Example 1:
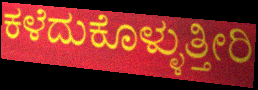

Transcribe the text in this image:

ಕಳೆದುಕೊಳ್ಳುತ್ತೀರಿ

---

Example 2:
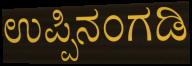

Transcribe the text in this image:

ಉಪ್ಪಿನಂಗಡಿ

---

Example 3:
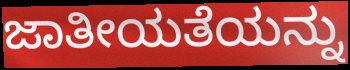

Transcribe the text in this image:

ಜಾತೀಯತೆಯನ್ನು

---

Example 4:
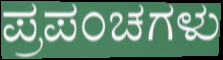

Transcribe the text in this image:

ಪ್ರಪಂಚಗಳು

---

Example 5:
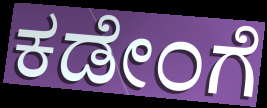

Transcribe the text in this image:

ಕಡೇಂಗೆ